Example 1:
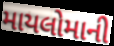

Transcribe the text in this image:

માયલોમાની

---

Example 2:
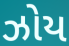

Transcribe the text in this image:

ઝોય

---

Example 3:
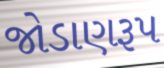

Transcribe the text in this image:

જોડાણરૂપ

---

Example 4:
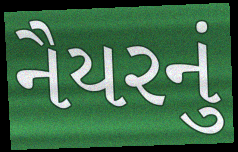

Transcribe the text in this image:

નૈયરનું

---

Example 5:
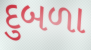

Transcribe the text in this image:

દુબળા